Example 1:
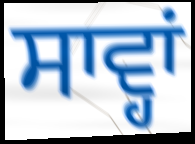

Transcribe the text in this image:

ਸਾਵ੍ਹਾਂ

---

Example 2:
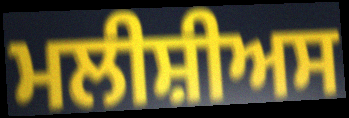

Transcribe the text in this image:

ਮਲੀਸ਼ੀਅਸ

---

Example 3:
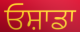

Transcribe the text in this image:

ਓਸ਼ਾਡਾ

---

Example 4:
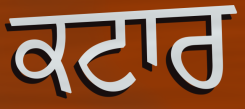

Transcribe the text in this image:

ਕਟਾਰ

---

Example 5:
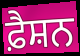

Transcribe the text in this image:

ਫ਼ੈਸ਼ਨ